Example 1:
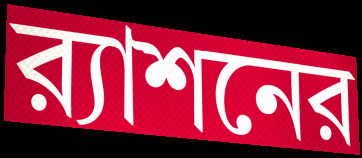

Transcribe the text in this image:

র‍্যাশনের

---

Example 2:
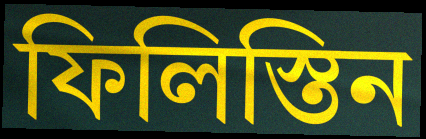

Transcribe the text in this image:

ফিলিস্তিন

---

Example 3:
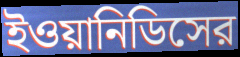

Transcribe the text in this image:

ইওয়ানিডিসের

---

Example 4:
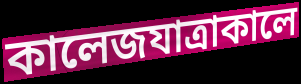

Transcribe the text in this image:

কালেজযাত্রাকালে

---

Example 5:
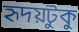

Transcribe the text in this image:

হৃদয়টুকু